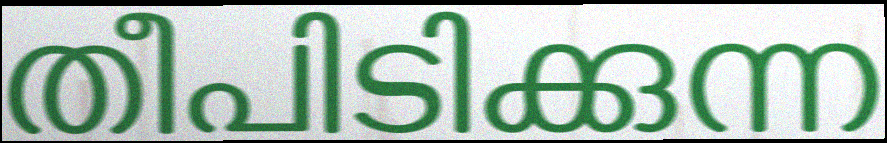
തീപിടിക്കുന്ന